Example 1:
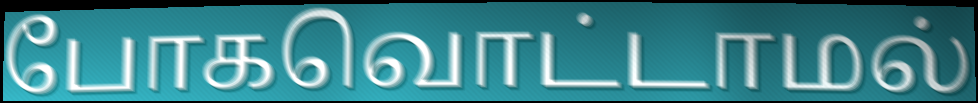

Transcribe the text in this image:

போகவொட்டாமல்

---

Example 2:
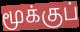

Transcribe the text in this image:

மூக்குப்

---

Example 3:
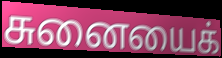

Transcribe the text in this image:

சுனையைக்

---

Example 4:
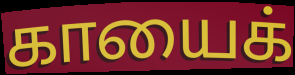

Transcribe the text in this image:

காயைக்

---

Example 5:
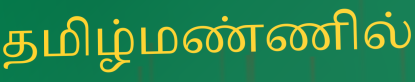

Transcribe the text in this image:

தமிழ்மண்ணில்